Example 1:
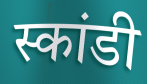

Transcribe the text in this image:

स्कांडी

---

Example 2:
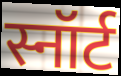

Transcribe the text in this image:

स्नॉर्ट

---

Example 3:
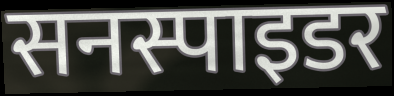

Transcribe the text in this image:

सनस्पाइडर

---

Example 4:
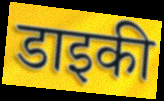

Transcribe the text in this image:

डाइकी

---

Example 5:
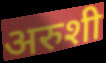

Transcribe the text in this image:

अरुशी